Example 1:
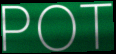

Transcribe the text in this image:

POT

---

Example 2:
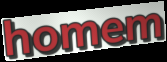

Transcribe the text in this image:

homem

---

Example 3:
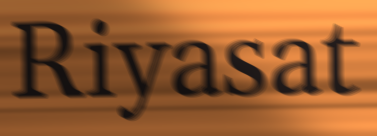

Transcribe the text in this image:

Riyasat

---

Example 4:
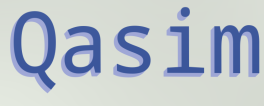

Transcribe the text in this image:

Qasim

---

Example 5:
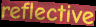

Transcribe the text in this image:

reflective